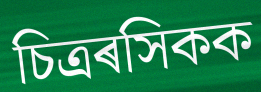
চিত্ৰৰসিকক